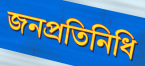
জনপ্রতিনিধি